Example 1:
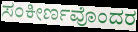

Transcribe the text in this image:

ಸಂಕೀರ್ಣವೊಂದರ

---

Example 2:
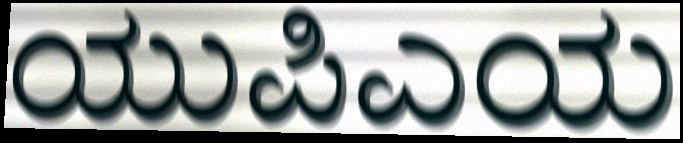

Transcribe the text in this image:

ಯುಪಿಎಯ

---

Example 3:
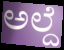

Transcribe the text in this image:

ಅಲ್ದೆ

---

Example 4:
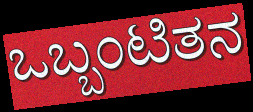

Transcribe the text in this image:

ಒಬ್ಬಂಟಿತನ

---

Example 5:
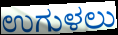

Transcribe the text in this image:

ಉಗುಳಲು